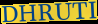
DHRUTI